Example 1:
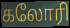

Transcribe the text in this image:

கலோரி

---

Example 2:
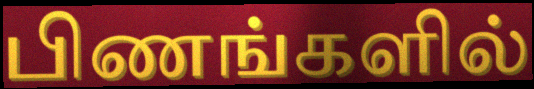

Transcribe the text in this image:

பிணங்களில்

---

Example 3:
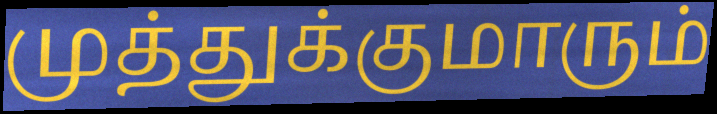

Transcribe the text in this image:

முத்துக்குமாரும்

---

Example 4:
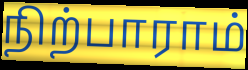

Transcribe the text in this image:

நிற்பாராம்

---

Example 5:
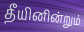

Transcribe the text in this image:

தீயினின்றும்